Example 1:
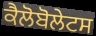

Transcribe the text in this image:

ਕੈਲੋਬੋਲੇਟਸ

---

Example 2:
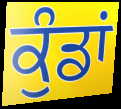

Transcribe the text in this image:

ਕੁੰਡਾਂ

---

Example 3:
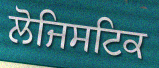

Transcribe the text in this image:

ਲੋਜਿਸਟਿਕ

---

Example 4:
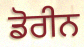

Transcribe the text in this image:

ਡੋਰੀਨ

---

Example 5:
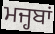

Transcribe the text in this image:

ਮਜ੍ਹਬਾਂ